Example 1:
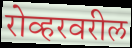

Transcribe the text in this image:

रोव्हरवरील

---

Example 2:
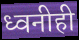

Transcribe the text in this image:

ध्वनीही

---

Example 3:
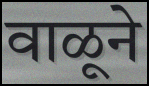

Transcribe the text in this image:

वाळूने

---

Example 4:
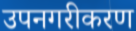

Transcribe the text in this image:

उपनगरीकरण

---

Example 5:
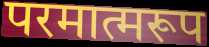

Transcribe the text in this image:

परमात्मरूप